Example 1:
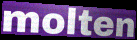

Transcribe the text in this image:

molten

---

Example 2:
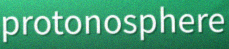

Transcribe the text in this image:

protonosphere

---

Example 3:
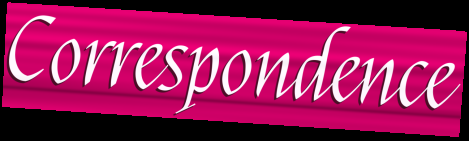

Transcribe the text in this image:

Correspondence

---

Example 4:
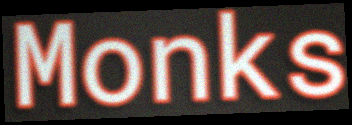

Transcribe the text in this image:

Monks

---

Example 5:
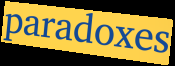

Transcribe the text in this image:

paradoxes